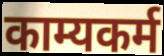
काम्यकर्म